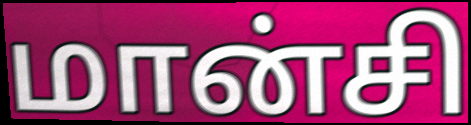
மான்சி